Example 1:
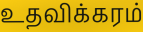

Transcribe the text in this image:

உதவிக்கரம்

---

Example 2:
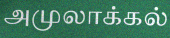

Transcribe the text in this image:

அமுலாக்கல்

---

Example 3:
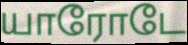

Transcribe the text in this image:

யாரோடே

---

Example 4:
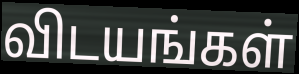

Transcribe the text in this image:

விடயங்கள்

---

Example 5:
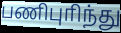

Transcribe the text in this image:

பணிபுரிந்து